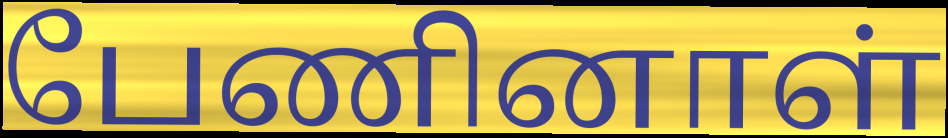
பேணினாள்